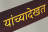
यांच्यादेखत